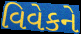
વિવેકને